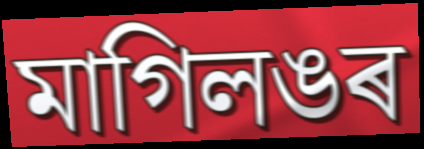
মাগিলঙৰ